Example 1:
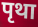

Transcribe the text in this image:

पृथा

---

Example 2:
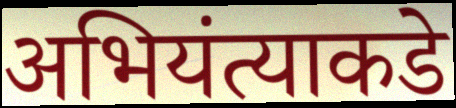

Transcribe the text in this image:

अभियंत्याकडे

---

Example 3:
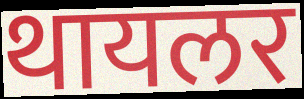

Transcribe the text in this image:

थायलर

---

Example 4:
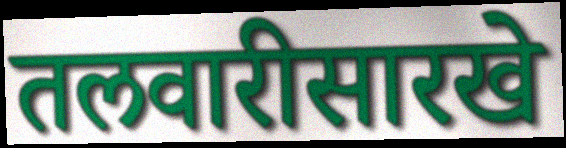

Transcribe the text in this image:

तलवारीसारखे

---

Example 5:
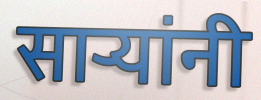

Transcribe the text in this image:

साऱ्यांनी